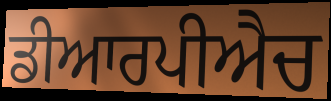
ਡੀਆਰਪੀਐਚ